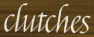
clutches